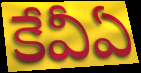
కేవీఏ